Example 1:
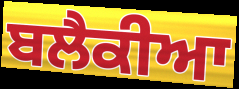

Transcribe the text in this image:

ਬਲੈਕੀਆ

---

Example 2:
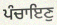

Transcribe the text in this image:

ਪੰਚਾਇਣੁ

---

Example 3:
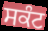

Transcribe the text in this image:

ਸਕੰਟ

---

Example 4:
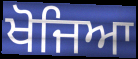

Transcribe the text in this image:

ਖੋਜਿਆ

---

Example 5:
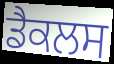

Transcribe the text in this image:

ਡੈਕਲਸ